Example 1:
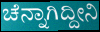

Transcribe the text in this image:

ಚೆನ್ನಾಗಿದ್ದೀನಿ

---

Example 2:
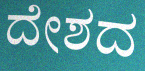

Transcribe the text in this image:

ದೇಶದ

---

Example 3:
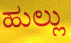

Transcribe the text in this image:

ಹುಲ್ಲು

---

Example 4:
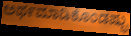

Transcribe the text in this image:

ಅರ್ಥಮಾಡಿಕೊಂಡಷ್ಟು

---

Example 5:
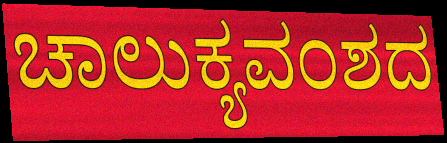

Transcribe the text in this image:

ಚಾಲುಕ್ಯವಂಶದ